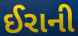
ઈરાની